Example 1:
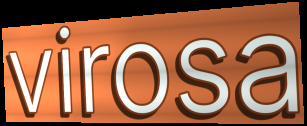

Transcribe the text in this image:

virosa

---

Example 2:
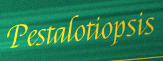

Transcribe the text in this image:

Pestalotiopsis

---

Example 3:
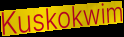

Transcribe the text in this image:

Kuskokwim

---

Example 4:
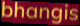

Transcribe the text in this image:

bhangis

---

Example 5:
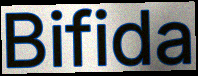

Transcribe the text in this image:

Bifida